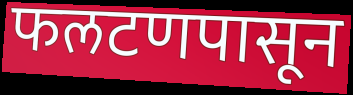
फलटणपासून